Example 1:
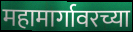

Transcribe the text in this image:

महामार्गावरच्या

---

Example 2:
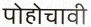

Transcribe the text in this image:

पोहोचावी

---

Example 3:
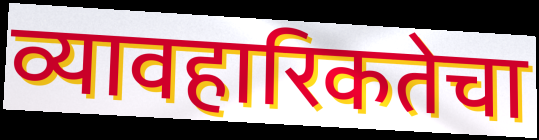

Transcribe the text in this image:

व्यावहारिकतेचा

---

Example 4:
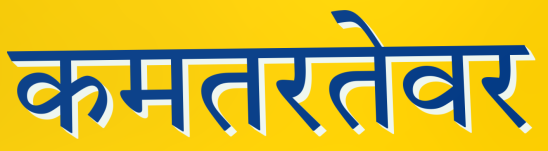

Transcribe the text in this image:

कमतरतेवर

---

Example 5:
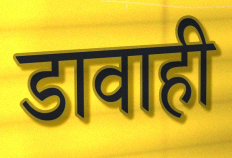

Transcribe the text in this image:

डावाही